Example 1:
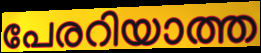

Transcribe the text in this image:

പേരറിയാത്ത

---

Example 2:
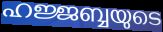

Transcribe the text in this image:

ഹജ്ജബ്ബയുടെ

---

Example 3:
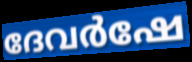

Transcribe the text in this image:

ദേവർഷേ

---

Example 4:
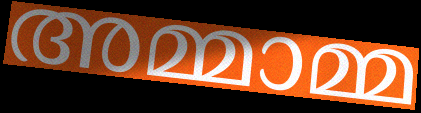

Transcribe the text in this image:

അമ്മാമ്മ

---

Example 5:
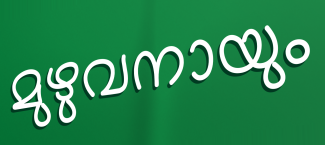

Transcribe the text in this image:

മുഴുവനായും